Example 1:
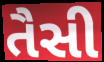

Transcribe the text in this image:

તૈસી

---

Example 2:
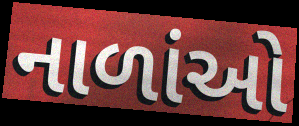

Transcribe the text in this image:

નાળાંઓ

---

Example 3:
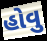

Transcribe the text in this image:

હોવુ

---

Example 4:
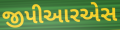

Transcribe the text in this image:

જીપીઆરએસ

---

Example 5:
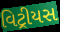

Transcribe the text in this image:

વિટ્રીયસ